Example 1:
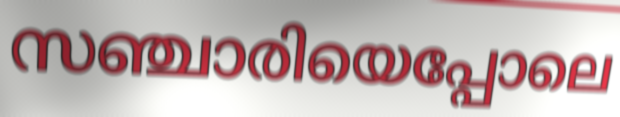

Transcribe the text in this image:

സഞ്ചാരിയെപ്പോലെ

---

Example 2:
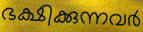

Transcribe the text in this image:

ഭക്ഷിക്കുന്നവർ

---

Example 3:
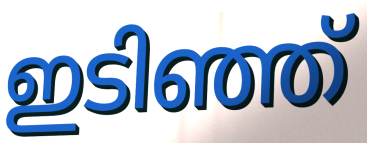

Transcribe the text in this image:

ഇടിഞ്ഞ്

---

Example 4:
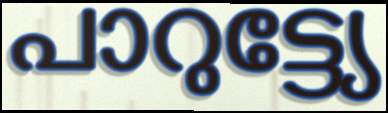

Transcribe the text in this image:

പാറുട്ട്യേ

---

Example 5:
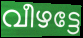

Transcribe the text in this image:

വീഴട്ടേ